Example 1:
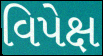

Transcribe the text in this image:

વિપેક્ષ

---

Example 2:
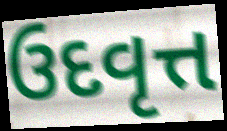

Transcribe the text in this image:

ઉદવૃત્ત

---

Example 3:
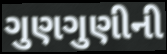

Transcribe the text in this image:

ગુણગુણીની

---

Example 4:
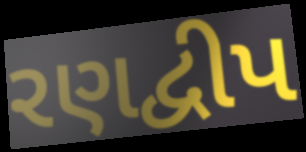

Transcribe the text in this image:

રણદ્વીપ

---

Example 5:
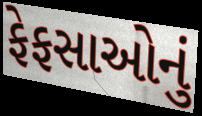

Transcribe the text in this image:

ફેફસાઓનું